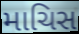
માચિસ